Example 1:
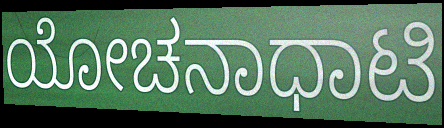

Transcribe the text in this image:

ಯೋಚನಾಧಾಟಿ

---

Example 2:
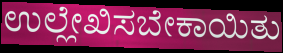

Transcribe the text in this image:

ಉಲ್ಲೇಖಿಸಬೇಕಾಯಿತು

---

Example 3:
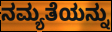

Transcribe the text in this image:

ನಮ್ಯತೆಯನ್ನು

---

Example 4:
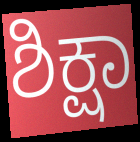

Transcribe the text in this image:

ಶಿಕ್ಷಾ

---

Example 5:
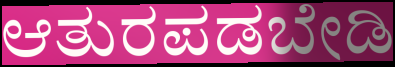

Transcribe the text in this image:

ಆತುರಪಡಬೇಡಿ